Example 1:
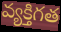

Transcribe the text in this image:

వ్యక్తిగత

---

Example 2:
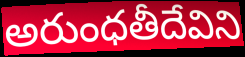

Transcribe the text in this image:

అరుంధతీదేవిని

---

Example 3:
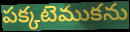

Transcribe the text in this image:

పక్కటెముకను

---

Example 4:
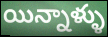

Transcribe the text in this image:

యిన్నాళ్ళు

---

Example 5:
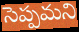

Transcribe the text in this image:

సెప్పమని